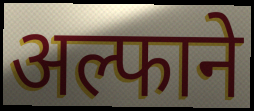
अल्फाने